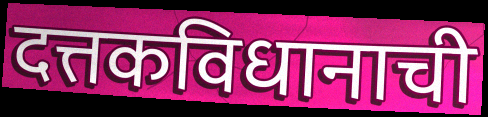
दत्तकविधानाची